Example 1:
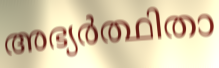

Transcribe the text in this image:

അഭ്യർത്ഥിതാ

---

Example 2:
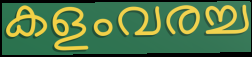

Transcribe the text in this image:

കളംവരച്ച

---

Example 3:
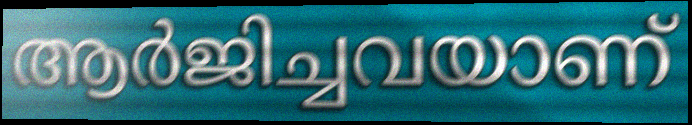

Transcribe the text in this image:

ആർജിച്ചവയാണ്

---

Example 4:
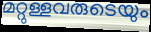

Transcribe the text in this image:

മറ്റുള്ളവരുടെയും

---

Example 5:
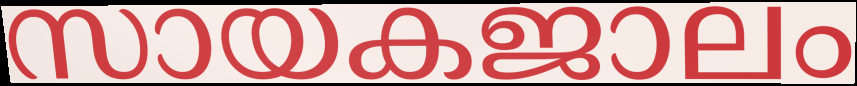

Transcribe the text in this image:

സായകജാലം